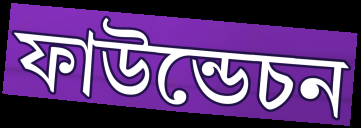
ফাউন্ডেচন